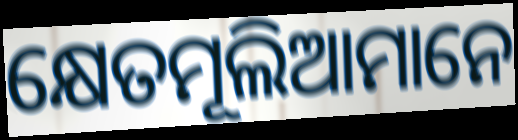
କ୍ଷେତମୂଲିଆମାନେ